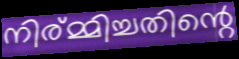
നിര്മ്മിച്ചതിന്റെ